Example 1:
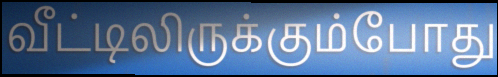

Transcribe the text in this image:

வீட்டிலிருக்கும்போது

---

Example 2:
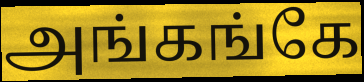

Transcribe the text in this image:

அங்கங்கே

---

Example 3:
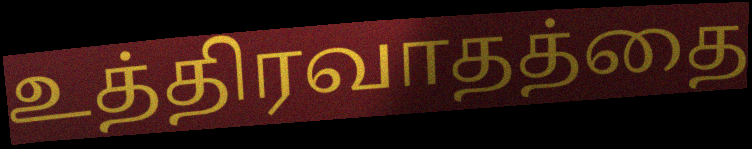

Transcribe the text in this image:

உத்திரவாதத்தை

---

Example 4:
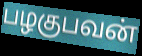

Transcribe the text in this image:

பழகுபவன்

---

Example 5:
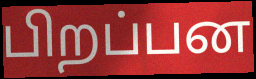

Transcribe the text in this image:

பிறப்பன